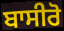
ਬਾਸੀਰੋ